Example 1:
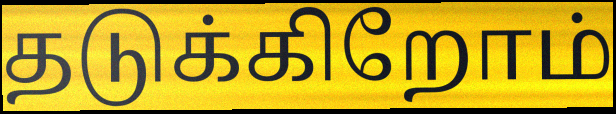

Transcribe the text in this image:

தடுக்கிறோம்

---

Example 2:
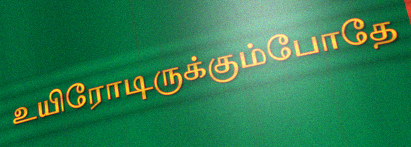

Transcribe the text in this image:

உயிரோடிருக்கும்போதே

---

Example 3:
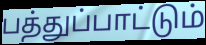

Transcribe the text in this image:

பத்துப்பாட்டும்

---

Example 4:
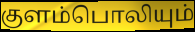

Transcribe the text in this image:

குளம்பொலியும்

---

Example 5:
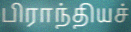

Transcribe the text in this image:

பிராந்தியச்